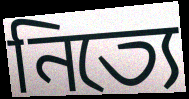
নিত্যে